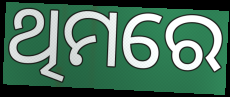
ଥିମରେ